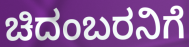
ಚಿದಂಬರನಿಗೆ